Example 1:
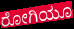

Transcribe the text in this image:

ರೋಗಿಯೂ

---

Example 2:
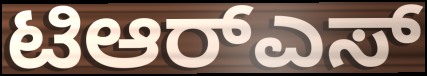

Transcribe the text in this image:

ಟಿಆರ್‌ಎಸ್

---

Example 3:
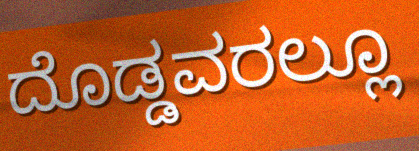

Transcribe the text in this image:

ದೊಡ್ಡವರಲ್ಲೂ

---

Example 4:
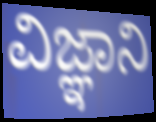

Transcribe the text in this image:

ವಿಜ್ಞಾನಿ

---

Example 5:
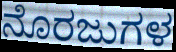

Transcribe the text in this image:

ನೊರಜುಗಳ